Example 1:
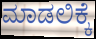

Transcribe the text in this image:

ಮಾಡಲಿಕ್ಕೆ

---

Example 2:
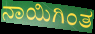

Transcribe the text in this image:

ನಾಯಿಗಿಂತ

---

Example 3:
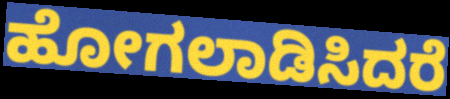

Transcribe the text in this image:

ಹೋಗಲಾಡಿಸಿದರೆ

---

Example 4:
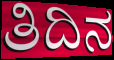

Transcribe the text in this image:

ತಿದಿನ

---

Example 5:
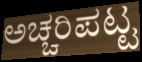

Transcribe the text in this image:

ಅಚ್ಚರಿಪಟ್ಟ